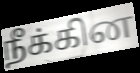
நீக்கின